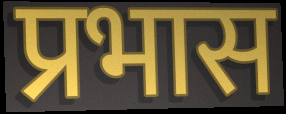
प्रभास